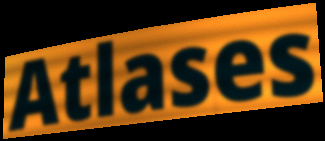
Atlases